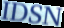
IDSN